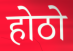
होठो